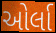
ઓર્લા